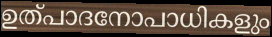
ഉത്പാദനോപാധികളും